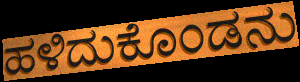
ಹಳಿದುಕೊಂಡನು